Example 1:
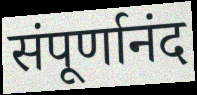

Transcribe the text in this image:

संपूर्णानंद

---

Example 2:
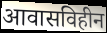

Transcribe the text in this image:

आवासविहीन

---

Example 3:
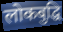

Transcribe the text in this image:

लोकबुद्धि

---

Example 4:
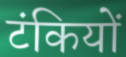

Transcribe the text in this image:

टंकियों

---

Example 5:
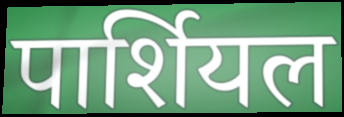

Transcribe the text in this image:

पार्शियल